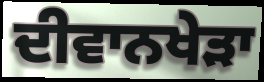
ਦੀਵਾਨਖੇੜਾ